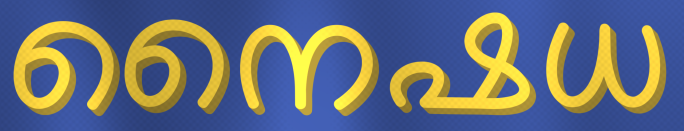
നൈഷധ